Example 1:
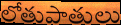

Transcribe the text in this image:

లోతుపాతులు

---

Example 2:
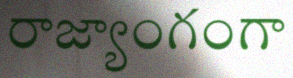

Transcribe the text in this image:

రాజ్యాంగంగా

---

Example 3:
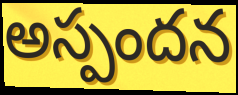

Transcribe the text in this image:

అస్పందన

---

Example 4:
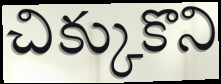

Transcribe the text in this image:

చిక్కుకొని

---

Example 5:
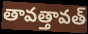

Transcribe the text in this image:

తావత్తావత్